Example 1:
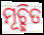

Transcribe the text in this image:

ମୂଚ୍ଛିତ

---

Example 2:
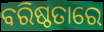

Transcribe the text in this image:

ବରିଷ୍ଠତାରେ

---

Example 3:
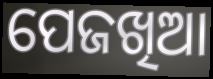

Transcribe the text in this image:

ପେଜଖିଆ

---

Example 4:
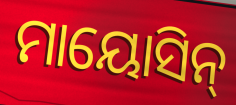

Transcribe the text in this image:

ମାୟୋସିନ୍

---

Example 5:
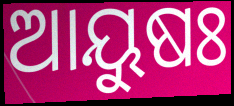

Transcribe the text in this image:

ଆୟୁଷଃ